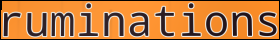
ruminations